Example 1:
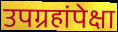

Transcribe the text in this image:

उपग्रहांपेक्षा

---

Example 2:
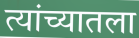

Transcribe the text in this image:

त्यांच्यातला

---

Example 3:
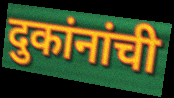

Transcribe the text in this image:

दुकांनांची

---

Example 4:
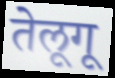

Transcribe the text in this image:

तेलूगू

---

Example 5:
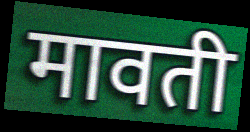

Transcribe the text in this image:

मावती